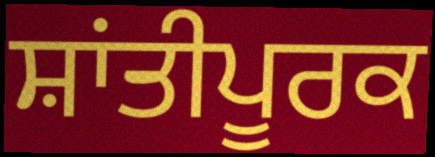
ਸ਼ਾਂਤੀਪੂਰਕ